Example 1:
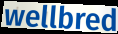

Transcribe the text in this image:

wellbred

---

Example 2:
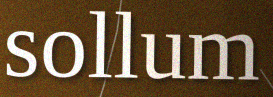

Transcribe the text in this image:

sollum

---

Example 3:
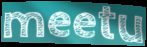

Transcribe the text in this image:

meetu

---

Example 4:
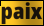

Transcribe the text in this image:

paix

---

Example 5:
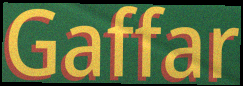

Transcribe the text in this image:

Gaffar